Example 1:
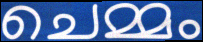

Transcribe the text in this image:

ചെമ്മം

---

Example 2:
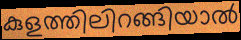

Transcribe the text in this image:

കുളത്തിലിറങ്ങിയാൽ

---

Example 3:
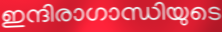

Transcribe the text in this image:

ഇന്ദിരാഗാന്ധിയുടെ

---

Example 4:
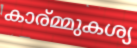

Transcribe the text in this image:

കാര്മ്മുകശ്യ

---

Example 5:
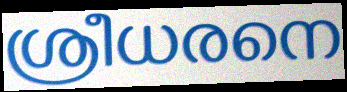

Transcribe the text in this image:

ശ്രീധരനെ